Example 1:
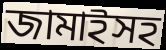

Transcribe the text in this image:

জামাইসহ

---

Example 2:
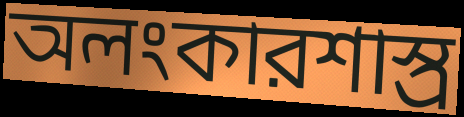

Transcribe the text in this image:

অলংকারশাস্ত্র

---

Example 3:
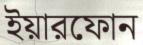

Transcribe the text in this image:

ইয়ারফোন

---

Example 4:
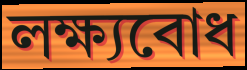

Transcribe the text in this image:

লক্ষ্যবোধ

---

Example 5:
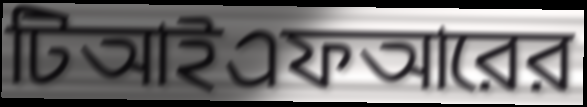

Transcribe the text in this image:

টিআইএফআরের